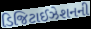
ડિજિટાઈઝેશનની